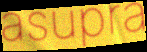
asupra